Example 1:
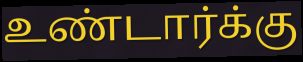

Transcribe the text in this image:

உண்டார்க்கு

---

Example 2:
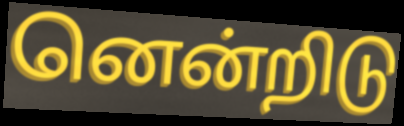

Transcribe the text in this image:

னென்றிடு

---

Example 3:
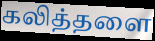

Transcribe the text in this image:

கலித்தளை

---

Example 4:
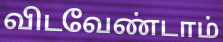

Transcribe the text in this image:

விடவேண்டாம்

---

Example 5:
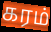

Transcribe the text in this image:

கரம்